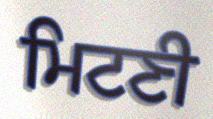
ਮਿਟਣੀ